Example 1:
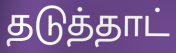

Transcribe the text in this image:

தடுத்தாட்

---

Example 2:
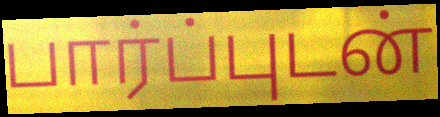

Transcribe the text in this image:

பார்ப்புடன்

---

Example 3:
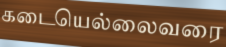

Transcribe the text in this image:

கடையெல்லைவரை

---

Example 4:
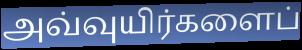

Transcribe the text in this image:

அவ்வுயிர்களைப்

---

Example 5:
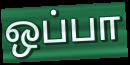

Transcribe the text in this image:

ஒப்பா